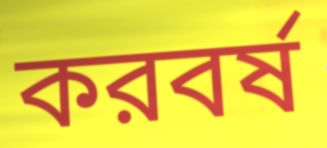
করবর্ষ